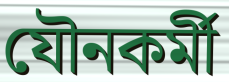
যৌনকৰ্মী